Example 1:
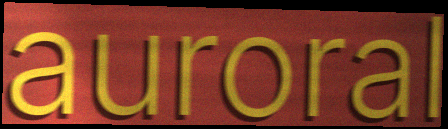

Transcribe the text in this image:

auroral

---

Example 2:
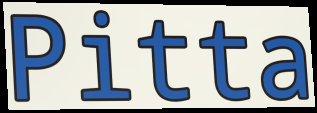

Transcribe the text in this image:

Pitta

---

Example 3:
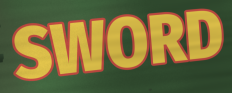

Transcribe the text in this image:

SWORD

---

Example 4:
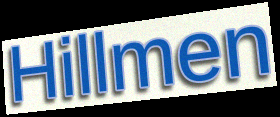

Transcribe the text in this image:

Hillmen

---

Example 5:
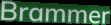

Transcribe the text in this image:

Brammer